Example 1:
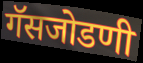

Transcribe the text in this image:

गॅसजोडणी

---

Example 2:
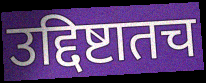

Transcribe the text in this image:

उद्दिष्टातच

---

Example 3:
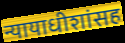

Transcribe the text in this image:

न्यायाधीशांसह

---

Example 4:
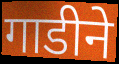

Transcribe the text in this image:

गाडीने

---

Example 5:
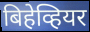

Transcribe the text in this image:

बिहेव्हियर